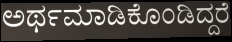
ಅರ್ಥಮಾಡಿಕೊಂಡಿದ್ದರೆ